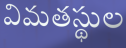
విమతస్థుల